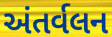
અંતર્વલન